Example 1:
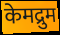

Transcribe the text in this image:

केमद्रुम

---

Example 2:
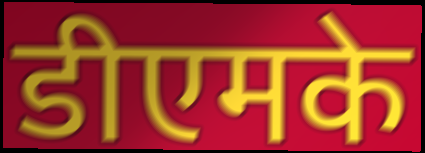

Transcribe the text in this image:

डीएमके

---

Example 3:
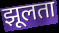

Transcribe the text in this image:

झूलता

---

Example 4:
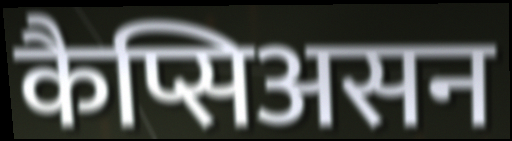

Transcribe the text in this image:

कैप्सिअसन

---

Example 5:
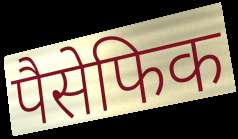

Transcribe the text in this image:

पैसेफिक